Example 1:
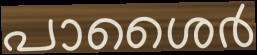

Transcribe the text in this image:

പാശൈർ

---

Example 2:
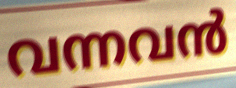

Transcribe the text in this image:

വന്നവൻ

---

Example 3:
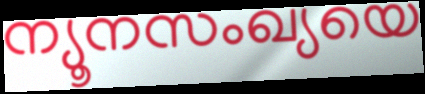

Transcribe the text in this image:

ന്യൂനസംഖ്യയെ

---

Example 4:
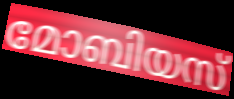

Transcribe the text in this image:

മോബിയസ്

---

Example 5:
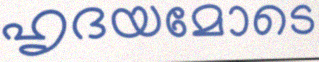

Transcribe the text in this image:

ഹൃദയമോടെ